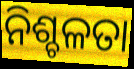
ନିଶ୍ଚଳତା